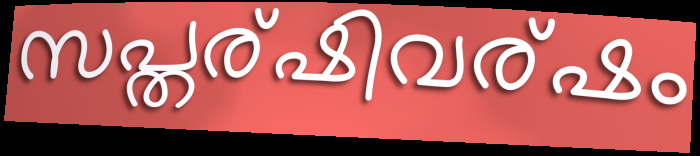
സപ്തര്ഷിവര്ഷം